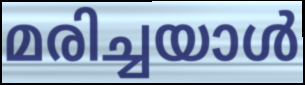
മരിച്ചയാൾ